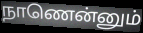
நாணென்னும்